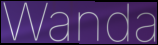
Wanda